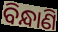
ବିନ୍ଧାଣି